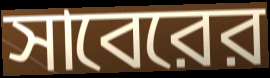
সাবেরের